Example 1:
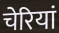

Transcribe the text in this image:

चेरियां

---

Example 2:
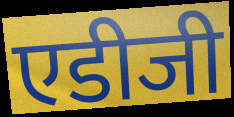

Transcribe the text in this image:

एडीजी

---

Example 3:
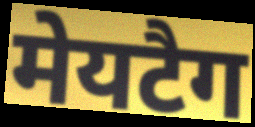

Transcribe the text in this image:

मेयटैग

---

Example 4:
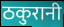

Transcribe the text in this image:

ठकुरानी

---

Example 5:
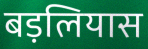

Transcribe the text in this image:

बड़लियास